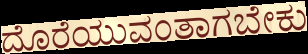
ದೊರೆಯುವಂತಾಗಬೇಕು